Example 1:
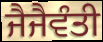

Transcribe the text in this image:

ਜੈਜੈਵੰਤੀ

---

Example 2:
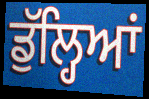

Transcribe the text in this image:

ਡੁੱਲ੍ਹਿਆਂ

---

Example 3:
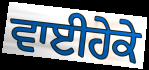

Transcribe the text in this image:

ਵਾਈਹੇਕੇ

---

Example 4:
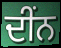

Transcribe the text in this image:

ਦੀਂਨ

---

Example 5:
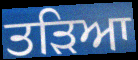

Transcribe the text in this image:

ਤੜਿਆ